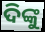
ଦିଙ୍କୁ